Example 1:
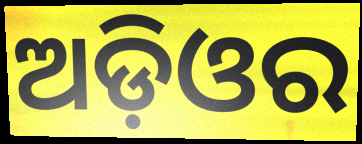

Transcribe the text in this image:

ଅଡ଼ିଓର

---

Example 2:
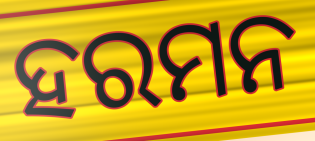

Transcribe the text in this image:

ହରମନ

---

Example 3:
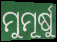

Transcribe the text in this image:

ମୁମୂର୍ଷୁ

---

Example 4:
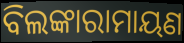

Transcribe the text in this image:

ବିଲଙ୍କାରାମାୟଣ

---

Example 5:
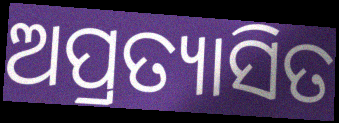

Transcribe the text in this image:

ଅପ୍ରତ୍ୟାସିତ